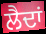
ਲੈਦਾਂ